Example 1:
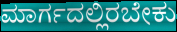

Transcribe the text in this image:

ಮಾರ್ಗದಲ್ಲಿರಬೇಕು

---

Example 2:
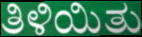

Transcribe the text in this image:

ತಿಳಿಯಿತು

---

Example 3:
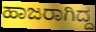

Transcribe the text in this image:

ಹಾಜರಾಗಿದ್ದ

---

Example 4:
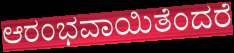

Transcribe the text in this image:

ಆರಂಭವಾಯಿತೆಂದರೆ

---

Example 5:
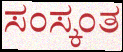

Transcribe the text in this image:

ಸಂಸ್ಕಂತ